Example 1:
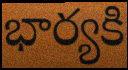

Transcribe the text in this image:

భార్యకి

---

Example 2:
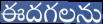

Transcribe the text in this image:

ఈదగలను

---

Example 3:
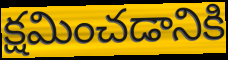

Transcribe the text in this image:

క్షమించడానికి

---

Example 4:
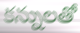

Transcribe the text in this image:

కన్నులతో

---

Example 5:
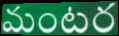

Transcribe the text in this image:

మంటర